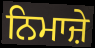
ਨਿਮਾਜ਼ੇ